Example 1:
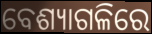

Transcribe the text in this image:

ବେଶ୍ୟାଗଳିରେ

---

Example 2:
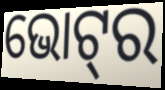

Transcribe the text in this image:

ଭୋଟ୍‍ର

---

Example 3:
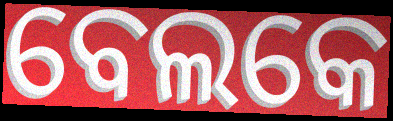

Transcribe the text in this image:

ବେଲକେ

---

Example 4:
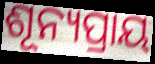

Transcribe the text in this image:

ଶୂନ୍ୟପ୍ରାୟ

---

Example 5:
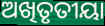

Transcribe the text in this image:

ଅଖିତୃତୀୟା